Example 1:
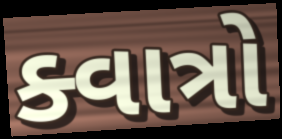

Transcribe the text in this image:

ક્વાત્રો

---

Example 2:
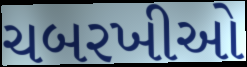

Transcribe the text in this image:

ચબરખીઓ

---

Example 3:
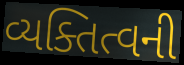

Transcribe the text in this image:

વ્યક્તિત્વની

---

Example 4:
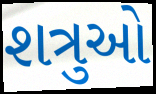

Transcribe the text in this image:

શત્રુઓ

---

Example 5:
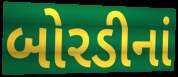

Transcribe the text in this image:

બોરડીનાં